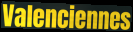
Valenciennes